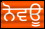
ਨੋਵਊ